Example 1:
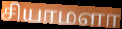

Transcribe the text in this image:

சியாமளா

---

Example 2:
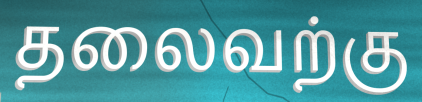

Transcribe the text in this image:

தலைவற்கு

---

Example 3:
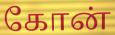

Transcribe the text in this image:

கோன்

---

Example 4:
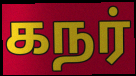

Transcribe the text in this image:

கநர்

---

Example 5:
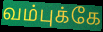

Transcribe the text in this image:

வம்புக்கே